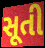
સૂતી